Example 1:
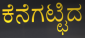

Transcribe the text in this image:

ಕೆನೆಗಟ್ಟಿದ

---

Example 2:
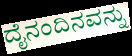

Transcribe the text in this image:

ದೈನಂದಿನವನ್ನು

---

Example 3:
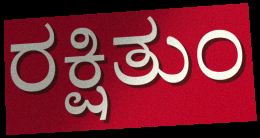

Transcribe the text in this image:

ರಕ್ಷಿತುಂ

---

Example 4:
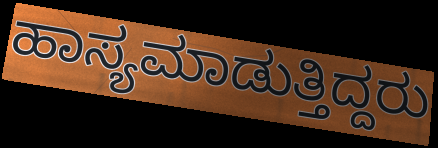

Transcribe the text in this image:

ಹಾಸ್ಯಮಾಡುತ್ತಿದ್ದರು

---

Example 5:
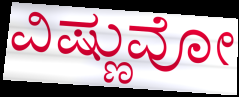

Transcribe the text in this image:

ವಿಷ್ಣುವೋ